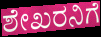
ಶೇಖರನಿಗೆ